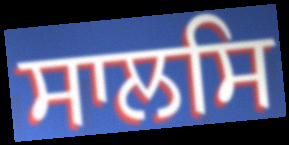
ਸਾਲਸਿ